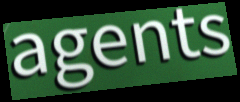
agents